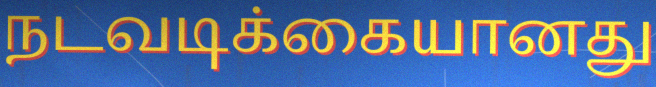
நடவடிக்கையானது